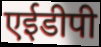
एईडीपी